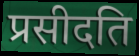
प्रसीदति